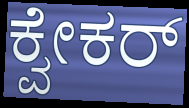
ಕ್ವೇಕರ್